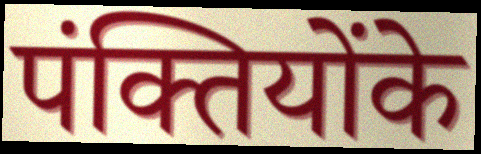
पंक्तियोंके